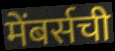
मेंबर्सची